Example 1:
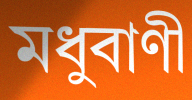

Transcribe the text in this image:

মধুবাণী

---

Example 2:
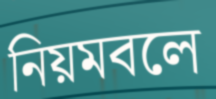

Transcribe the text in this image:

নিয়মবলে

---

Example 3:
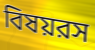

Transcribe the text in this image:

বিষয়রস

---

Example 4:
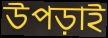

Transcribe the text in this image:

উপড়াই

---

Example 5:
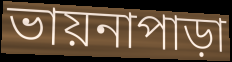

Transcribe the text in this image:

ভায়নাপাড়া